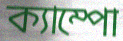
ক্যাম্পো